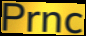
Prnc